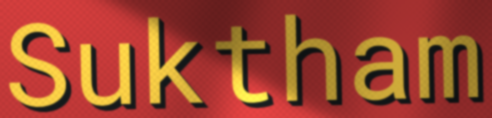
Suktham